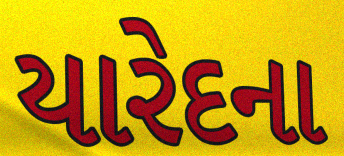
યારેદના